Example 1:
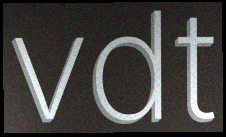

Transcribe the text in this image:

vdt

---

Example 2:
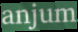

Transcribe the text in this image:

anjum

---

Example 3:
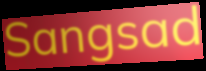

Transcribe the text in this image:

Sangsad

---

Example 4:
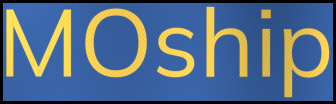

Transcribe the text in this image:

MOship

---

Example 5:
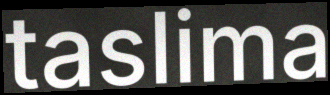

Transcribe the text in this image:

taslima